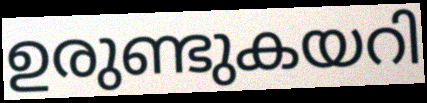
ഉരുണ്ടുകയറി